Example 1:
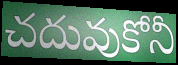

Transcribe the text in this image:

చదువుకోనీ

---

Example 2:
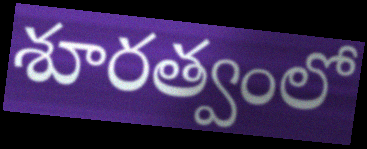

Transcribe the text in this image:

శూరత్వంలో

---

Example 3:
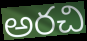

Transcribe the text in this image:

అరచి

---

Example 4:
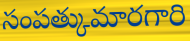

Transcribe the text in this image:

సంపత్కుమారగారి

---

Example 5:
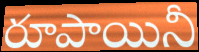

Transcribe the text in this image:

రూపాయినీ